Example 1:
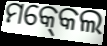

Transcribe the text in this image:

ମକ୍‍କେଲ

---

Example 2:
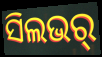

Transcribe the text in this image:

ସିଲଭର୍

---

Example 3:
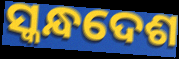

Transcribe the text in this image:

ସ୍କନ୍ଧଦେଶ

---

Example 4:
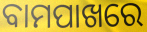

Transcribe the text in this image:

ବାମପାଖରେ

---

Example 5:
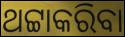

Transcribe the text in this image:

ଥଟ୍ଟାକରିବା